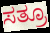
ಸತ್ರೂ